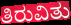
ತಿರುವಿತು